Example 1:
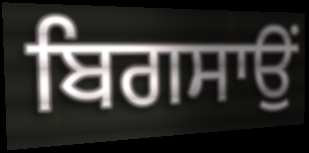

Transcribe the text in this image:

ਬਿਗਸਾਉਂ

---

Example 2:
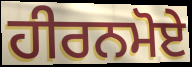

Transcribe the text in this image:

ਹੀਰਨਮੋਏ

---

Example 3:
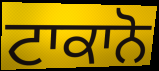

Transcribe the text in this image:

ਟਾਕਾਨੋ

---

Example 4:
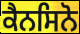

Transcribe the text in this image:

ਕੈਨਸਿਨੋ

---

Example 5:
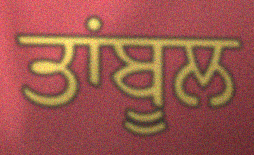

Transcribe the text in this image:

ਤਾਂਬੂਲ